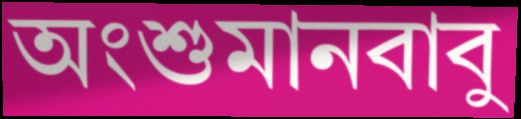
অংশুমানবাবু